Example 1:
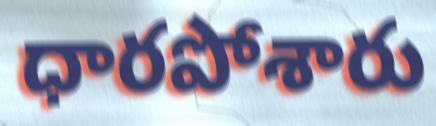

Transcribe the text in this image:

ధారపోశారు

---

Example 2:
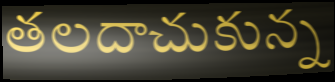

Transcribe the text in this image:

తలదాచుకున్న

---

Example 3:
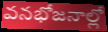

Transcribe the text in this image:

వనభోజనాల్లో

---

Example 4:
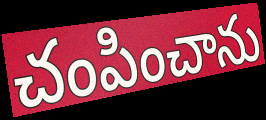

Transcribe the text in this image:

చంపించాను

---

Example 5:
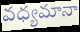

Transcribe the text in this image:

వధ్యమానా